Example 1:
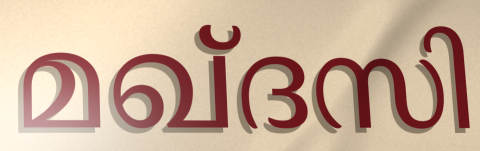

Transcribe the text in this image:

മഖ്ദസി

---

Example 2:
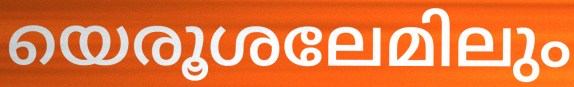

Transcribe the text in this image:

യെരൂശലേമിലും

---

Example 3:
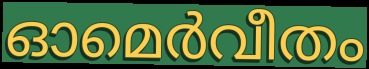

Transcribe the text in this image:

ഓമെർവീതം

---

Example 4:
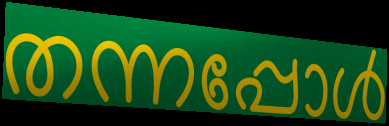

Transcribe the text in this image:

തന്നപ്പോൾ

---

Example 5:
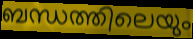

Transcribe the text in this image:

ബന്ധത്തിലെയും